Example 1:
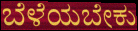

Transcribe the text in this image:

ಬೆಳೆಯಬೇಕು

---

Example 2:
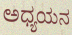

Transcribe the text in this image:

ಅಧ್ಯಯನ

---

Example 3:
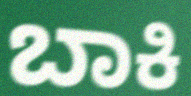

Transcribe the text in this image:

ಬಾಕಿ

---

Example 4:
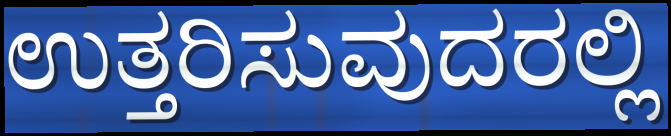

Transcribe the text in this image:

ಉತ್ತರಿಸುವುದರಲ್ಲಿ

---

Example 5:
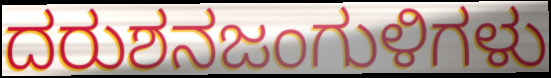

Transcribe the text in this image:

ದರುಶನಜಂಗುಳಿಗಳು